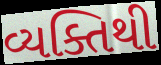
વ્યક્તિથી